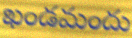
ఖండమందు